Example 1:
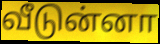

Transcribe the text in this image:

வீடுன்னா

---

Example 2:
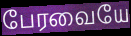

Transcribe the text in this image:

பேரவையே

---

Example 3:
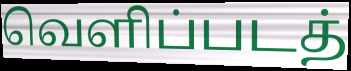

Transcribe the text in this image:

வெளிப்படத்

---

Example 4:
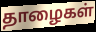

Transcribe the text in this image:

தாழைகள்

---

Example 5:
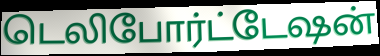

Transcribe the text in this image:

டெலிபோர்ட்டேஷன்